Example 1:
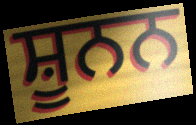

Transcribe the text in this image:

ਸ਼ੂਨਨ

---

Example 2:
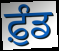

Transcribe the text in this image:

ਫ਼ੁੰਡ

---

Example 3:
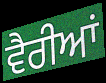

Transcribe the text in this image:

ਵੈਰੀਆਂ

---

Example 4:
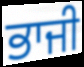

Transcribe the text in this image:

ਭਾਜੀ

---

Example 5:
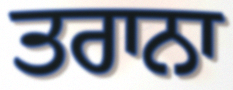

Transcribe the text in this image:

ਤਰਾਨਾ